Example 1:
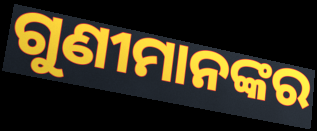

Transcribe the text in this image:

ଗୁଣୀମାନଙ୍କର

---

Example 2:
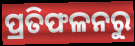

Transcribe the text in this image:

ପ୍ରତିଫଳନରୁ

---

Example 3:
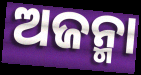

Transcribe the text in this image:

ଅଜନ୍ମା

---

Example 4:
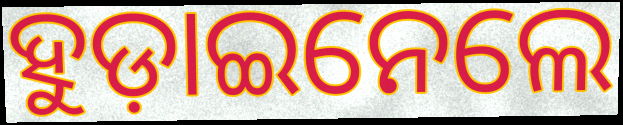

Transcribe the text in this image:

ହୁଡ଼ାଇନେଲେ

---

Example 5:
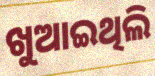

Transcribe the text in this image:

ଖୁଆଇଥିଲି